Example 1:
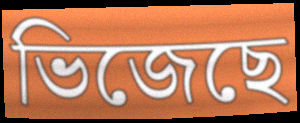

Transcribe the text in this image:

ভিজেছে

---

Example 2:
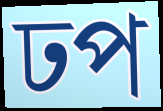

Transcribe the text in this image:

ঢপ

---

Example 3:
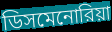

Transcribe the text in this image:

ডিসমেনোরিয়া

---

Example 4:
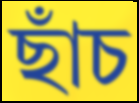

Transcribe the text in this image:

ছাঁচ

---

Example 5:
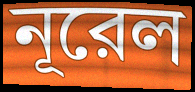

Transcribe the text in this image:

নূরেল